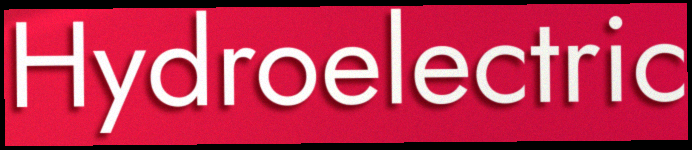
Hydroelectric